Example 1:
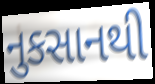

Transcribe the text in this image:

નુકસાનથી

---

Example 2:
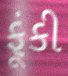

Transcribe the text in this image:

ફૂંકી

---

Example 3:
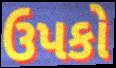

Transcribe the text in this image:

ઉપકો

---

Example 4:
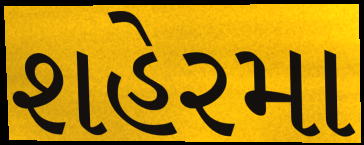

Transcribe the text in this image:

શહેરમા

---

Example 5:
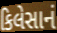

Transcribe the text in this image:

કિલેસાનં